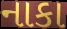
નાકા